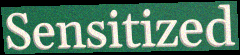
Sensitized